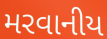
મરવાનીય